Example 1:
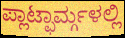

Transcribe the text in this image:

ಪ್ಲಾಟ್ಫಾರ್ಮ್ಗಳಲ್ಲಿ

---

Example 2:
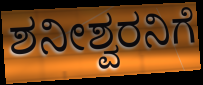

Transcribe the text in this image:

ಶನೀಶ್ವರನಿಗೆ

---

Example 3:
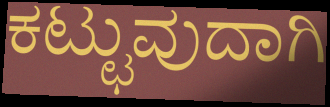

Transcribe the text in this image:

ಕಟ್ಟುವುದಾಗಿ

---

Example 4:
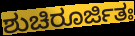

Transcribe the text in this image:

ಶುಚಿರೂರ್ಜಿತಃ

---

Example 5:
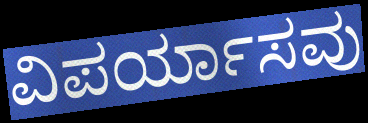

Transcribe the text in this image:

ವಿಪರ್ಯಾಸವು